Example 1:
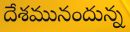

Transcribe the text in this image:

దేశమునందున్న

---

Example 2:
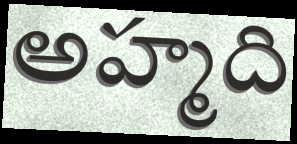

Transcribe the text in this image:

అహ్మది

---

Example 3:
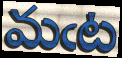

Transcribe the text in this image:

మఁట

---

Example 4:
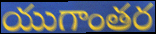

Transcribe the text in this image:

యుగాంతర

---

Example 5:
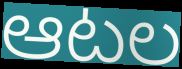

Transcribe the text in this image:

ఆటల